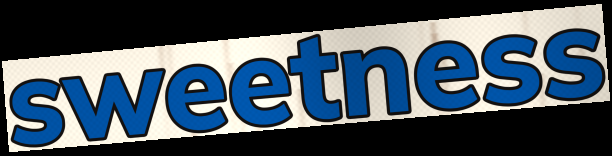
sweetness